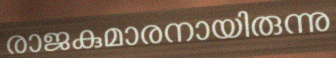
രാജകുമാരനായിരുന്നു